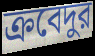
ক্রবেদুর